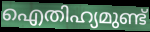
ഐതിഹ്യമുണ്ട്